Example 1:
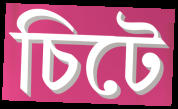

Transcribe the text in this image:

চিটে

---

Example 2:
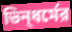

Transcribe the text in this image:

ভিন্‌ধর্মের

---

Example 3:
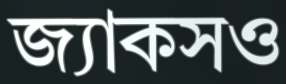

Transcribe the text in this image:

জ্যাকসও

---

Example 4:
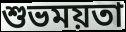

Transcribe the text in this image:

শুভময়তা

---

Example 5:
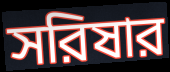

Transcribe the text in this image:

সরিষার